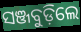
ସଞ୍ଜବୁଡ଼ିଲେ